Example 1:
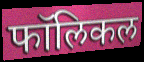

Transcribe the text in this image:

फॉलिकल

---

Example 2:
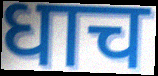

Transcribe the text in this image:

धाच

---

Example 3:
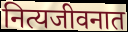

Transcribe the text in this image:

नित्यजीवनात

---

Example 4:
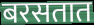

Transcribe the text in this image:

बरसतात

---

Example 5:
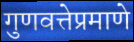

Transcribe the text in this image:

गुणवत्तेप्रमाणे